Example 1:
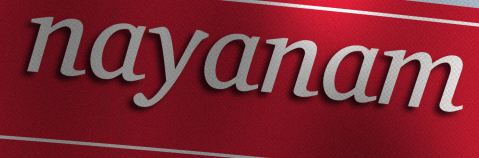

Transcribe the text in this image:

nayanam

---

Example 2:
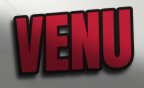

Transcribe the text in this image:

VENU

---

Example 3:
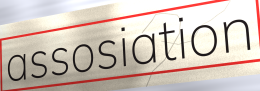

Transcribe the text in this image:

assosiation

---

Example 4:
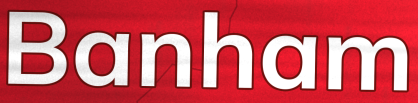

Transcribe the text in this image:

Banham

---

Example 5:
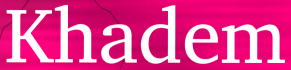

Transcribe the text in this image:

Khadem